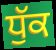
ਧੁੱਕ